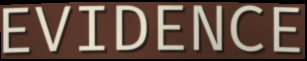
EVIDENCE